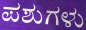
ಪಶುಗಳು